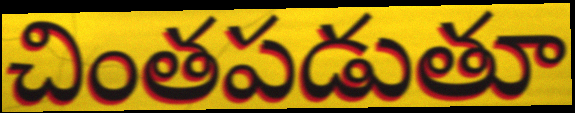
చింతపడుతూ